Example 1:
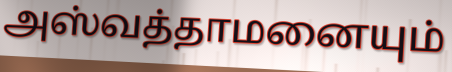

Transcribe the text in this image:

அஸ்வத்தாமனையும்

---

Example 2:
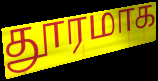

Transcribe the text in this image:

தூரமாக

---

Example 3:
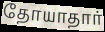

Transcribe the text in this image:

தோயாதார்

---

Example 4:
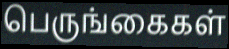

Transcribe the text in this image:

பெருங்கைகள்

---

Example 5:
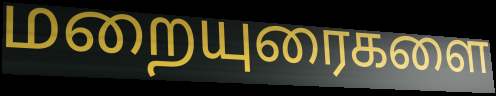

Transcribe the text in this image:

மறையுரைகளை